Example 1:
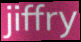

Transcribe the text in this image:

jiffry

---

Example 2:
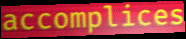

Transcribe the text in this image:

accomplices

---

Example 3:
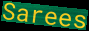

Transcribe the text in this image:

Sarees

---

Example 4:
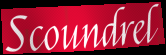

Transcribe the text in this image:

Scoundrel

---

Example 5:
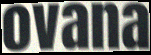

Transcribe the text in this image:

ovana